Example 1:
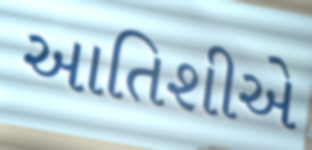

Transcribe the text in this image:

આતિશીએ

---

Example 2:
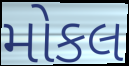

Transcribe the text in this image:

મોકલ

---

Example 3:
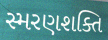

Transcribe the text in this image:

સ્મરણશક્તિ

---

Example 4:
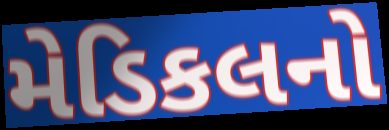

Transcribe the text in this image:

મેડિકલનો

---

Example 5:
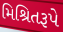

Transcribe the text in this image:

મિશ્રિતરૂપે